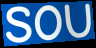
SOU